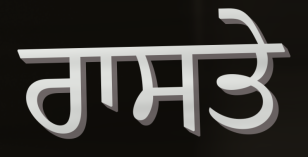
ਰਾਸਤੇ